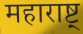
महाराष्ट्